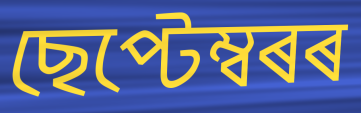
ছেপ্টেম্বৰৰ